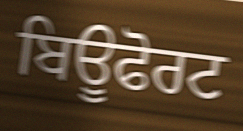
ਬਿਊਫੋਰਟ